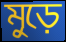
মুড়ে